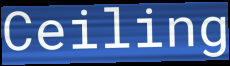
Ceiling